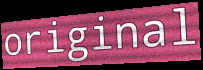
original